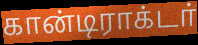
கான்டிராக்டர்